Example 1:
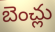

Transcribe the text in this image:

బెంచ్లు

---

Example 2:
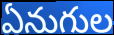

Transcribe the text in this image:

ఏనుగుల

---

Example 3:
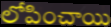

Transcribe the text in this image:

లోపించాయి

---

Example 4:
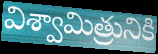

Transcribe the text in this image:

విశ్వామిత్రునికి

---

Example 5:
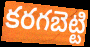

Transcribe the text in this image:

కరగబెట్టి